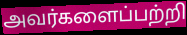
அவர்களைப்பற்றி